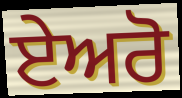
ਏਅਰੋ